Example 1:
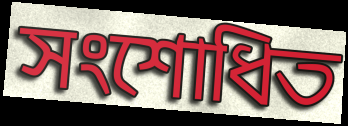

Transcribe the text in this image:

সংশোধিত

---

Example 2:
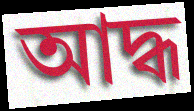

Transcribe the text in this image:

আদ্ধ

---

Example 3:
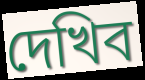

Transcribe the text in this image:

দেখিব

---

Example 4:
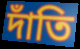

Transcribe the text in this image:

দাঁতি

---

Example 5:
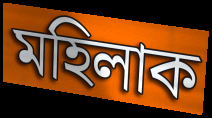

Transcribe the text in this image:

মহিলাক